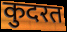
कुदरत